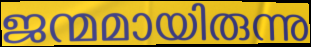
ജന്മമായിരുന്നു